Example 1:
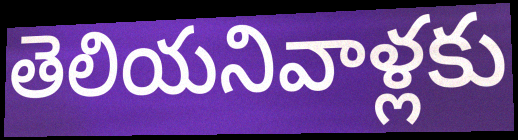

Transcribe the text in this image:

తెలియనివాళ్లకు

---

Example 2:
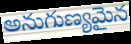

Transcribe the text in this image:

అనుగుణ్యమైన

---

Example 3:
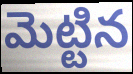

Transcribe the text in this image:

మెట్టిన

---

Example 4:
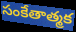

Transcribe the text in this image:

సంకేతాత్మక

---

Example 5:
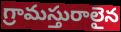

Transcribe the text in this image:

గ్రామస్తురాలైన